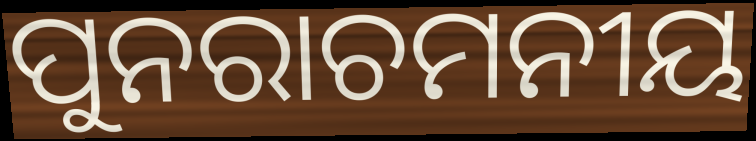
ପୁନରାଚମନୀୟ